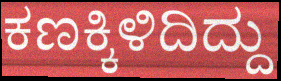
ಕಣಕ್ಕಿಳಿದಿದ್ದು